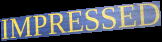
IMPRESSED